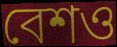
বেশও